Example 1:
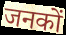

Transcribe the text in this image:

जनकों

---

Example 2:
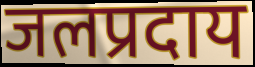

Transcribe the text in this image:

जलप्रदाय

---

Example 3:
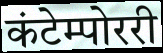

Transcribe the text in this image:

कंटेम्पोररी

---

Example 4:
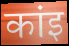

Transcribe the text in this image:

कांइ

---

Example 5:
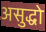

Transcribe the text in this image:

असुद्धो